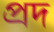
প্রদ